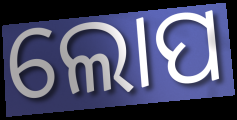
ଲୋପ